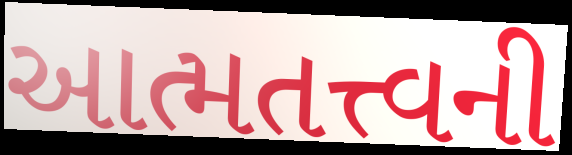
આત્મતત્ત્વની